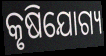
କୃଷିଯୋଗ୍ୟ